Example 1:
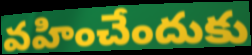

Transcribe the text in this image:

వహించేందుకు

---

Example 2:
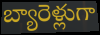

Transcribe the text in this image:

బ్యారెళ్లుగా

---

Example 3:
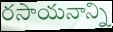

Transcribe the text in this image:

రసాయనాన్ని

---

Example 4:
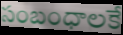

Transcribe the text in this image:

సంబంధాలకే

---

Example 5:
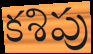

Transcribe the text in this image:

కశిపు